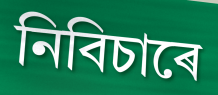
নিবিচাৰে